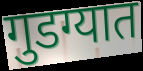
गुडग्यात